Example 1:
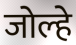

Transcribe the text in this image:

जोल्हे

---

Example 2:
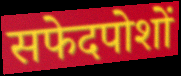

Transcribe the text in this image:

सफेदपोशों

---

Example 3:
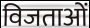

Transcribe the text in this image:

विजताओं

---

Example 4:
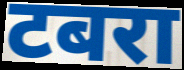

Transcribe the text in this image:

टबरा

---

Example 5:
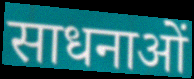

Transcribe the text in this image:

साधनाओं